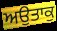
ਅਉਤਾਕੁ